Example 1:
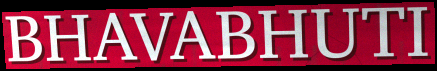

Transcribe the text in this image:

BHAVABHUTI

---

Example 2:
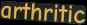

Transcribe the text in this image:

arthritic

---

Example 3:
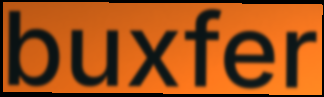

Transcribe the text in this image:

buxfer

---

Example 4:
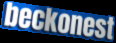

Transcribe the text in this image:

beckonest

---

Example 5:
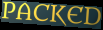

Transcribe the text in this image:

PACKED